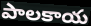
పాలకాయ